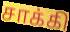
சாக்கி